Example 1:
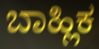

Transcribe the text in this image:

ಬಾಹ್ಲಿಕ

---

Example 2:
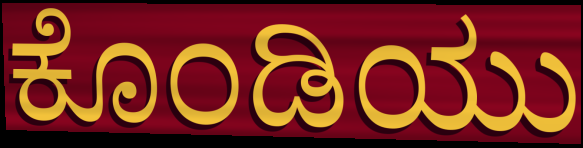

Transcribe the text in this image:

ಕೊಂಡಿಯು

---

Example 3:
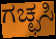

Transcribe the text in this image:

ಗಚ್ಛಸಿ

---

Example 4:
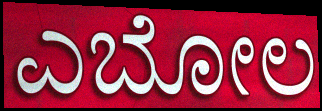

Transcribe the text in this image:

ಎಬೋಲ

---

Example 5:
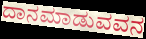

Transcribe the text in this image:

ದಾನಮಾಡುವವನ